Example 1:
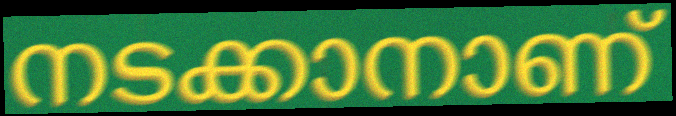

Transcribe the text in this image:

നടക്കാനാണ്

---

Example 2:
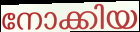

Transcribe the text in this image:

നോക്കിയ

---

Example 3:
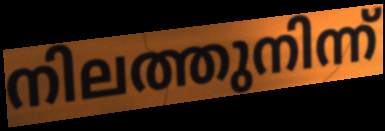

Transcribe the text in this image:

നിലത്തുനിന്ന്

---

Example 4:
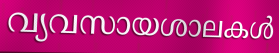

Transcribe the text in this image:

വ്യവസായശാലകൾ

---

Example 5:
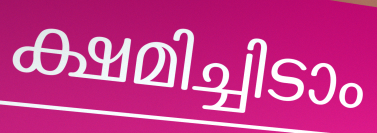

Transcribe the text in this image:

ക്ഷമിച്ചിടാം